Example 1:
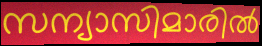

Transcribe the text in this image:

സന്യാസിമാരിൽ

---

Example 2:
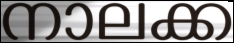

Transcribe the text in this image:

നാലക്ക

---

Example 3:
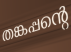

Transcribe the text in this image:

തങ്കപ്പന്റെ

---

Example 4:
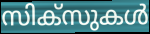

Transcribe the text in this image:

സിക്സുകൾ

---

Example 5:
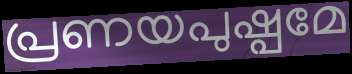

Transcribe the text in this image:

പ്രണയപുഷ്പമേ